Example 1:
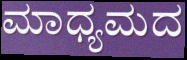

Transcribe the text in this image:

ಮಾಧ್ಯಮದ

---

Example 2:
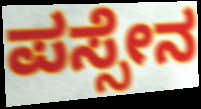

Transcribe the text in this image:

ಪಸ್ಸೇನ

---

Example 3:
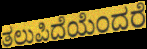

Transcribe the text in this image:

ತಲುಪಿದೆಯೆಂದರೆ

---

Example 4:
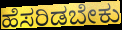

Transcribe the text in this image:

ಹೆಸರಿಡಬೇಕು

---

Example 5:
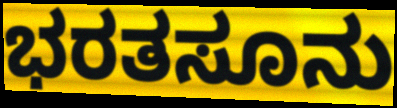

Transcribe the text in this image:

ಭರತಸೂನು